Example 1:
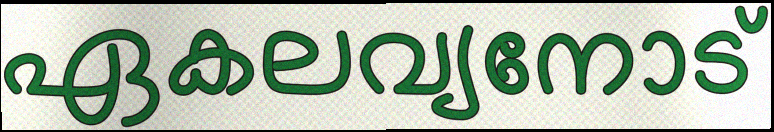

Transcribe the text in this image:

ഏകലവ്യനോട്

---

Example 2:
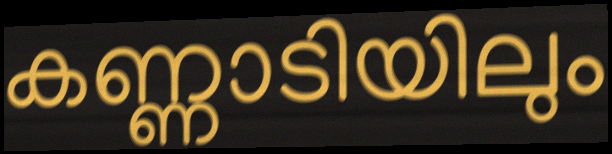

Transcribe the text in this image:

കണ്ണാടിയിലും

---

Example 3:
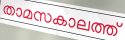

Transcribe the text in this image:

താമസകാലത്ത്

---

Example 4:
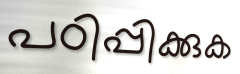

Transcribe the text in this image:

പഠിപ്പിക്കുക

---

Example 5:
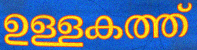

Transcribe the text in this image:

ഉള്ളകത്ത്